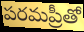
పరమప్రీతో